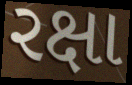
રક્ષા